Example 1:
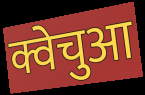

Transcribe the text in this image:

क्वेचुआ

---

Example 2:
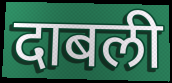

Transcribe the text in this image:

दाबली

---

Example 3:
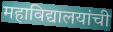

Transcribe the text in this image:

महाविद्यालयांची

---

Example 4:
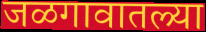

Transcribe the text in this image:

जळगावातल्या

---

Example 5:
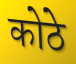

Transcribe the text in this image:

कोठे